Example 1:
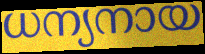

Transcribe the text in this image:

ധന്യനായ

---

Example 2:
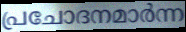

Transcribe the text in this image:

പ്രചോദനമാർന്ന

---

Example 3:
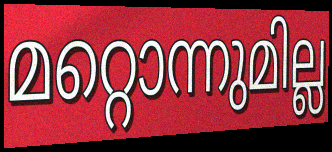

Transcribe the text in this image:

മറ്റൊന്നുമില്ല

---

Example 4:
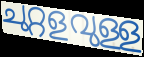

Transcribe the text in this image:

ചുറ്റളവുള്ള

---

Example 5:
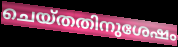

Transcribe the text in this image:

ചെയ്തതിനുശേഷം